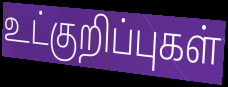
உட்குறிப்புகள்